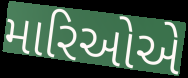
મારિઓએ